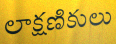
లాక్షణికులు